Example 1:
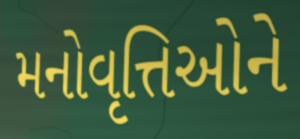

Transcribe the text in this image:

મનોવૃત્તિઓને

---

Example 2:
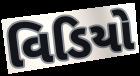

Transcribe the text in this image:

વિડિયો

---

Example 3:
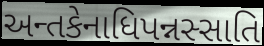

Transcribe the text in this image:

અન્તકેનાધિપન્નસ્સાતિ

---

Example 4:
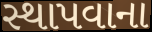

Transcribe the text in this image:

સ્થાપવાના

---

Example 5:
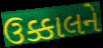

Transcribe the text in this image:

ઉક્કાલને